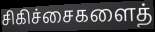
சிகிச்சைகளைத்